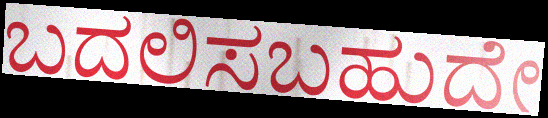
ಬದಲಿಸಬಹುದೇ